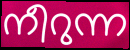
നീറുന്ന